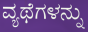
ವ್ಯಥೆಗಳನ್ನು